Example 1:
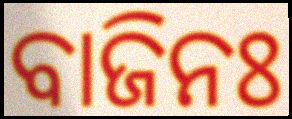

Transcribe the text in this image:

ବାଜିନଃ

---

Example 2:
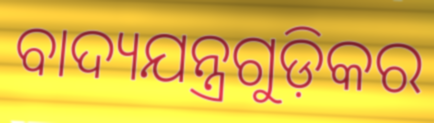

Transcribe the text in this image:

ବାଦ୍ୟଯନ୍ତ୍ରଗୁଡ଼ିକର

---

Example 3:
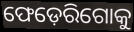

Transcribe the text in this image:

ଫେଡ଼େରିଗୋକୁ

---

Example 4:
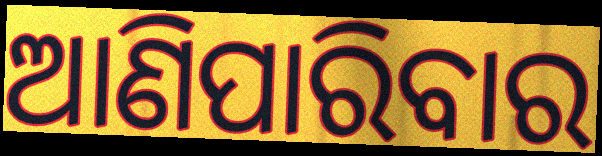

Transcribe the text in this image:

ଆଣିପାରିବାର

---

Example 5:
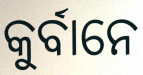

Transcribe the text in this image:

କୁର୍ବାନେ